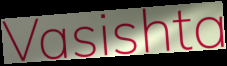
Vasishta